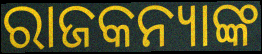
ରାଜକନ୍ୟାଙ୍କ